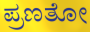
ಪ್ರಣತೋ